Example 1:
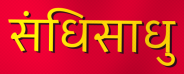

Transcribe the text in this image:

संधिसाधु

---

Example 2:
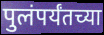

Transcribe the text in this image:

पुलंपर्यंतच्या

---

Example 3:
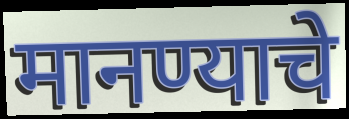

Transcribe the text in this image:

मानण्याचे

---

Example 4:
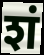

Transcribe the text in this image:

शं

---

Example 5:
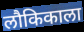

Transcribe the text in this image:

लौकिकाला